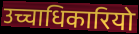
उच्चाधिकारियो